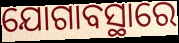
ଯୋଗାବସ୍ଥାରେ